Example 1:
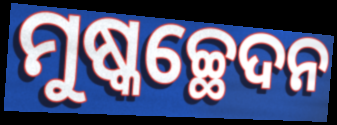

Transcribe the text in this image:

ମୁଷ୍କଚ୍ଛେଦନ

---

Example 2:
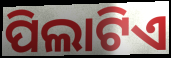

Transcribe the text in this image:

ପିଲାଟିଏ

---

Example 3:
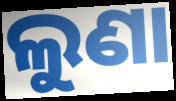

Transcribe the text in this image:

ଲୁଣା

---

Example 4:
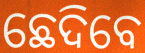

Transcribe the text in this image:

ଛେଦିବେ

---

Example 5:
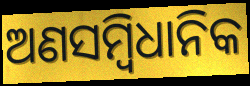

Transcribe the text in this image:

ଅଣସମ୍ବିଧାନିକ